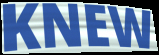
KNEW